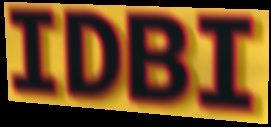
IDBI